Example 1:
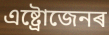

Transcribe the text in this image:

এষ্ট্ৰোজেনৰ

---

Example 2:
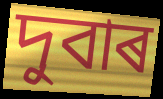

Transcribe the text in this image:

দুবাৰ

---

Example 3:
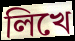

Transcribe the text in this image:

লিখে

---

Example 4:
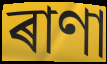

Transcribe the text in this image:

ৰাণা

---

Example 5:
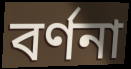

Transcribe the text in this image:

বৰ্ণনা